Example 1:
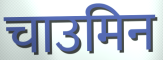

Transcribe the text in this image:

चाउमिन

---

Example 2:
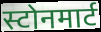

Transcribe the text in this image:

स्टोनमार्ट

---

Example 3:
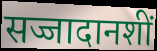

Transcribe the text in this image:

सज्जादानशीं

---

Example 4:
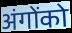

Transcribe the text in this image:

अंगोंको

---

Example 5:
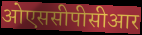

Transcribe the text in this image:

ओएससीपीसीआर